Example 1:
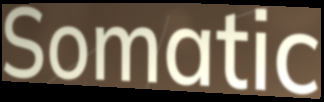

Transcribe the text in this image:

Somatic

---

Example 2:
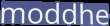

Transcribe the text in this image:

moddhe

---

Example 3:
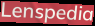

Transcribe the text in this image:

Lenspedia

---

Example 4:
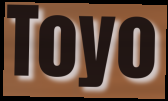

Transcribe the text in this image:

Toyo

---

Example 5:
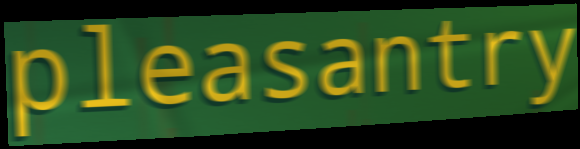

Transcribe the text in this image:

pleasantry